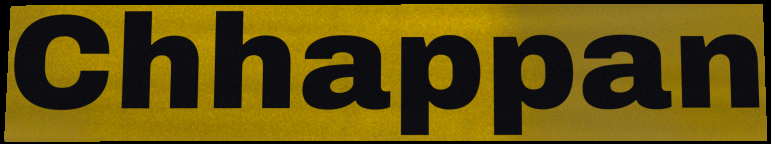
Chhappan